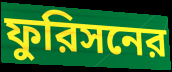
ফুরিসনের